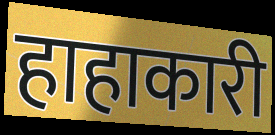
हाहाकारी